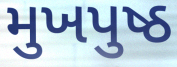
મુખપુષ્ઠ